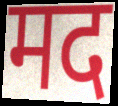
मद